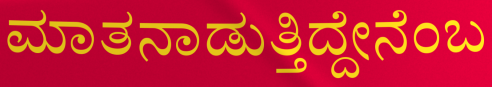
ಮಾತನಾಡುತ್ತಿದ್ದೇನೆಂಬ